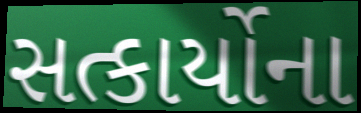
સત્કાર્યોના